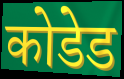
कोडेड